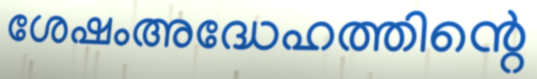
ശേഷംഅദ്ധേഹത്തിന്റെ